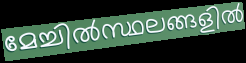
മേച്ചിൽസ്ഥലങ്ങളിൽ